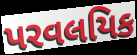
પરવલયિક